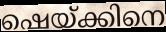
ഷെയ്ക്കിനെ